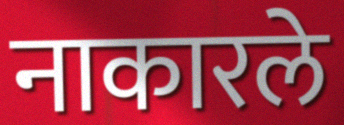
नाकारले